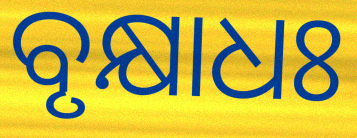
ବୃକ୍ଷାଧଃ